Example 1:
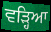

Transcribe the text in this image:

ਵੜ੍ਹਿਆ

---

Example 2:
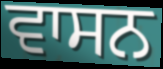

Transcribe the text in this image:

ਵਾਸਨ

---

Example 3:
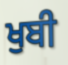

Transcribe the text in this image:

ਖੁਬੀ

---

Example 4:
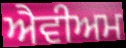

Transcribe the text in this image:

ਐਵੀਅਮ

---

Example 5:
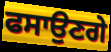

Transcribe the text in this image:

ਫਸਾਉਣਗੇ